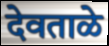
देवताळे